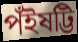
পঁইষট্টি